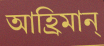
আহ্রিমান্